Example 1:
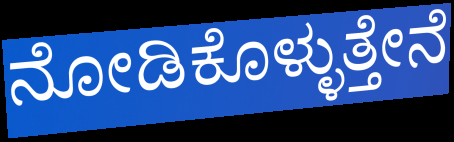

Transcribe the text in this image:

ನೋಡಿಕೊಳ್ಳುತ್ತೇನೆ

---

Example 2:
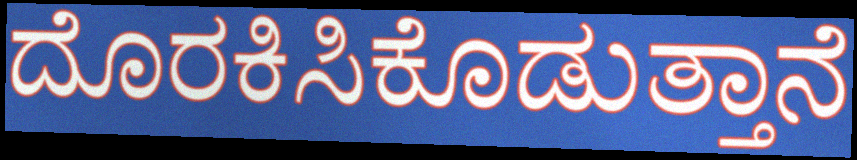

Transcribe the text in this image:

ದೊರಕಿಸಿಕೊಡುತ್ತಾನೆ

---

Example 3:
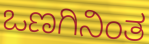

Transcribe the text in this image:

ಒಣಗಿನಿಂತ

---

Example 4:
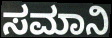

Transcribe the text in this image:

ಸಮಾನಿ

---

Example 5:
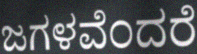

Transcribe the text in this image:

ಜಗಳವೆಂದರೆ